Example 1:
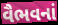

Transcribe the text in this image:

વૈભવનાં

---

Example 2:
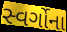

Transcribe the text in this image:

સ્વર્ગોના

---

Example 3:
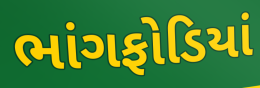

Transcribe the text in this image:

ભાંગફોડિયાં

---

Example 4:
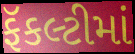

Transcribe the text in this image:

ફૅકલ્ટીમાં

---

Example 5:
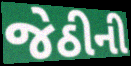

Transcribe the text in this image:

જેઠીની